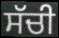
ਸੱਚੀ